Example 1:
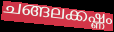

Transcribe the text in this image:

ചങ്ങലക്കഷ്ണം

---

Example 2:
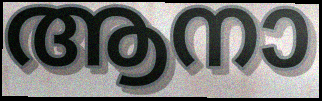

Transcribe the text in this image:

ആനാ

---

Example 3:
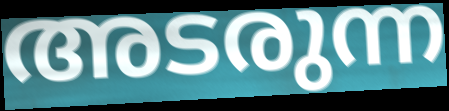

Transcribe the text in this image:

അടരുന്ന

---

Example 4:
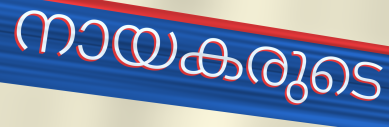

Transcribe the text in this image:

നായകരുടെ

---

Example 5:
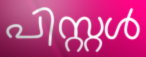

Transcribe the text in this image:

പിസ്റ്റൾ